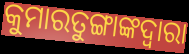
କୁମାରତୁଙ୍ଗାଙ୍କଦ୍ୱାରା